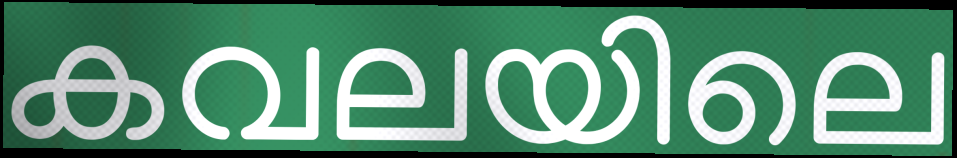
കവലയിലെ